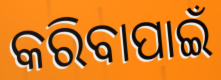
କରିବାପାଇଁ